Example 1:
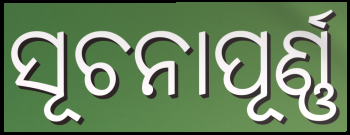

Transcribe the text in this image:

ସୂଚନାପୂର୍ଣ୍ଣ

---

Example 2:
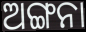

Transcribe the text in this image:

ଅଙ୍ଗନା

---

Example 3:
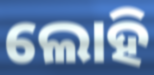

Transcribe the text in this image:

ଲୋହି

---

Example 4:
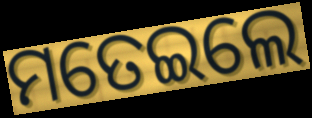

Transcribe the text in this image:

ମତେଇଲେ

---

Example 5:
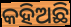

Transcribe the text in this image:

କହିଅଛି